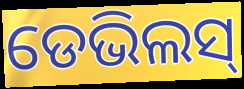
ଡେଭିଲସ୍